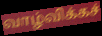
வாழ்விக்கச்